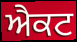
ਐਕਟ